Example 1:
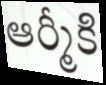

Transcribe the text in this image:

ఆర్మీకి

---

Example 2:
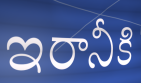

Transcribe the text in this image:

ఇరానీకి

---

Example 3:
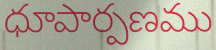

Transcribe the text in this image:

ధూపార్పణము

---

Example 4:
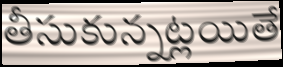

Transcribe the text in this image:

తీసుకున్నట్లయితే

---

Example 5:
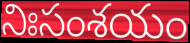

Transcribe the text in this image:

నిఃసంశయం